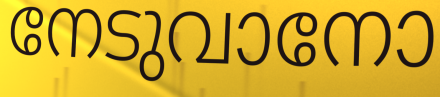
നേടുവാനോ